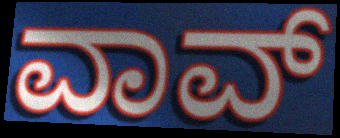
ವಾವ್